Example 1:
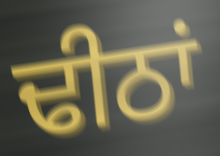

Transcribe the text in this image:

ਢੀਠਾਂ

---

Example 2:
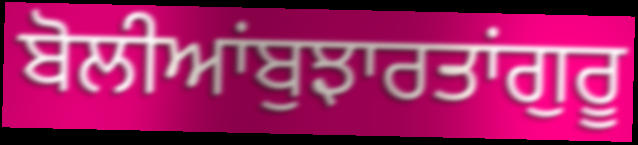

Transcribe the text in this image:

ਬੋਲੀਆਂਬੁਝਾਰਤਾਂਗੁਰੂ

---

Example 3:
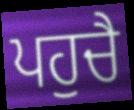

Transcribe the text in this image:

ਪਹੁਚੈ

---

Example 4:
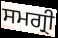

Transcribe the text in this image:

ਸਮਗ੍ਰੀ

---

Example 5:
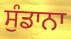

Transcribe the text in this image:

ਸੁੰਡਾਨਾ